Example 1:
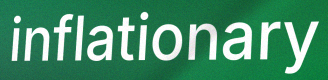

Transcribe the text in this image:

inflationary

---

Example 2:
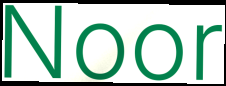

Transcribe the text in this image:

Noor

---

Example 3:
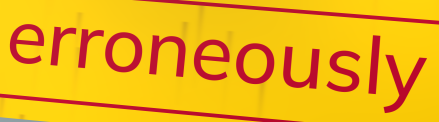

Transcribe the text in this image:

erroneously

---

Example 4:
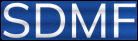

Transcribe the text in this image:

SDMF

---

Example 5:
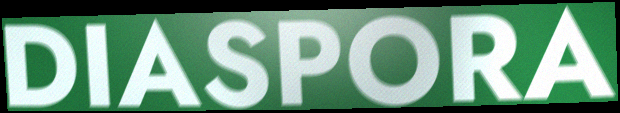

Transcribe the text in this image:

DIASPORA